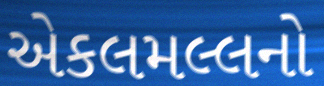
એકલમલ્લનો